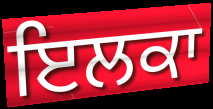
ਇਲਕਾ